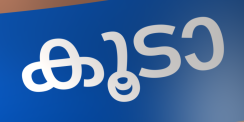
കൂടാ